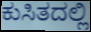
ಕುಸಿತದಲ್ಲಿ